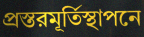
প্রস্তরমূর্তিস্থাপনে